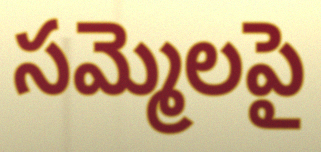
సమ్మెలపై